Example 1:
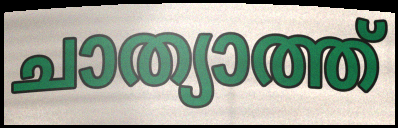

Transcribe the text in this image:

ചാത്യാത്ത്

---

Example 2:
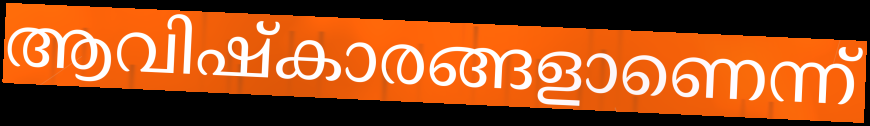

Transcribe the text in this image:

ആവിഷ്കാരങ്ങളാണെന്ന്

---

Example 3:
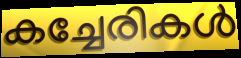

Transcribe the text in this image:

കച്ചേരികൾ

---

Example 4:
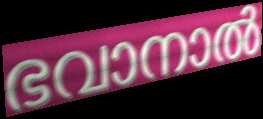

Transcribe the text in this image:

ഭവാനാൽ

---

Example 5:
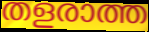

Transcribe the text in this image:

തളരാത്ത